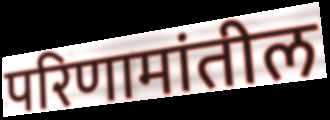
परिणामांतील